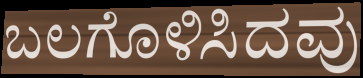
ಬಲಗೊಳಿಸಿದವು